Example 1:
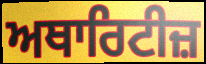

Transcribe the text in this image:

ਅਥਾਰਿਟੀਜ਼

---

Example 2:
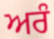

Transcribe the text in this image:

ਅਰੰ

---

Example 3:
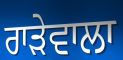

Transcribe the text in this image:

ਰਾੜੇਵਾਲਾ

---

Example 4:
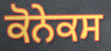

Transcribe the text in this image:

ਕੋਨੇਕਸ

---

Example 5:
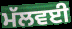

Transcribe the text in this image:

ਮੱਲਵਈ